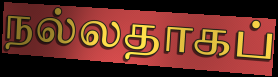
நல்லதாகப்